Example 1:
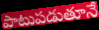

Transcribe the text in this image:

పాటుపడుతూనే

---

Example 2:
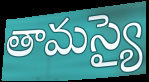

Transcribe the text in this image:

తామస్యై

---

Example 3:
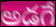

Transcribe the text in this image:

అడగే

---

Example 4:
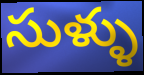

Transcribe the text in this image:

సుళ్ళు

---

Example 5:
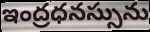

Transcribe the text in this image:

ఇంద్రధనస్సును